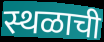
स्थळाची